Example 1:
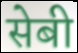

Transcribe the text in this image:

सेबी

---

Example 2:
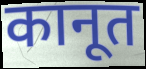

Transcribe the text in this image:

कानूत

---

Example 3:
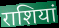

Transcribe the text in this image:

राशियां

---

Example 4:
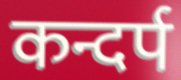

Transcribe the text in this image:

कन्दर्प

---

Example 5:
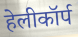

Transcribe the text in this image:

हेलीकॉर्प